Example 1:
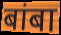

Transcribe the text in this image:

बांबा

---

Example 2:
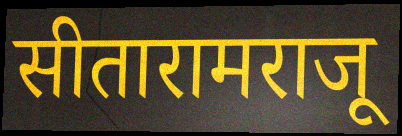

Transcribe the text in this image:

सीतारामराजू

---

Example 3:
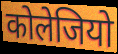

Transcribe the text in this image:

कोलेजियो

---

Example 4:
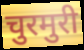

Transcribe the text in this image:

चुरमुरी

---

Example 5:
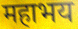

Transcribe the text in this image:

महाभय